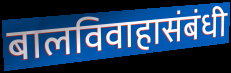
बालविवाहासंबंधी